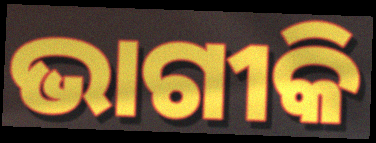
ଭାଗୀକି